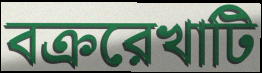
বক্ররেখাটি